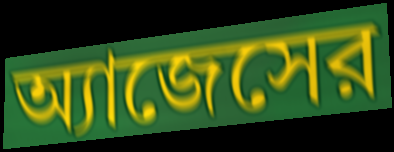
অ্যাজেসের